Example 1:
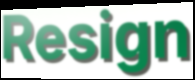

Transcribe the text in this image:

Resign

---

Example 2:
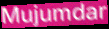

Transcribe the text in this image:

Mujumdar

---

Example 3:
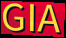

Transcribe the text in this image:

GIA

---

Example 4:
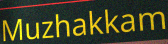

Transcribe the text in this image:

Muzhakkam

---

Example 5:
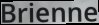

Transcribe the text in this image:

Brienne